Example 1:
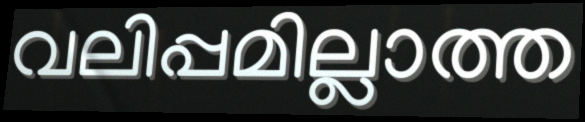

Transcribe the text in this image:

വലിപ്പമില്ലാത്ത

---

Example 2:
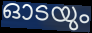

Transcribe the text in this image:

ഓടയും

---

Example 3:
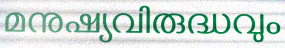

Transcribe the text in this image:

മനുഷ്യവിരുദ്ധവും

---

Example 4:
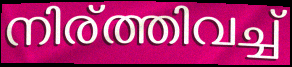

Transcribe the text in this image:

നിര്ത്തിവച്ച്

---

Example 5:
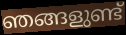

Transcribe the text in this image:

ഞങ്ങളുണ്ട്